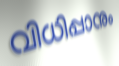
വിധിപ്പാനും